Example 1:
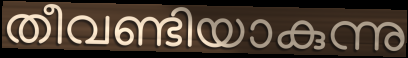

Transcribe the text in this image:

തീവണ്ടിയാകുന്നു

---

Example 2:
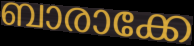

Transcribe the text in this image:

ബാരാക്കേ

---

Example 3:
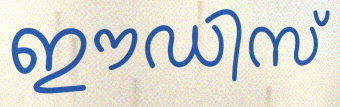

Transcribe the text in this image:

ഈഡിസ്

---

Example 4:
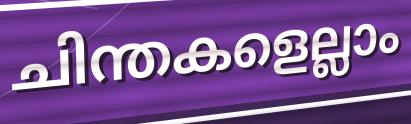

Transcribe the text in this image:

ചിന്തകളെല്ലാം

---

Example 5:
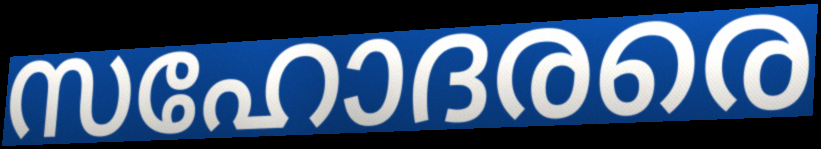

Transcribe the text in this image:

സഹോദരരെ